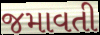
જમાવતી